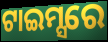
ଟାଇମ୍ସରେ